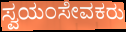
ಸ್ವಯಂಸೇವಕರು